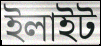
ইলাইট